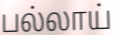
பல்லாய்